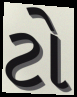
ટો